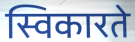
स्विकारते